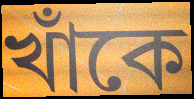
খাঁকে